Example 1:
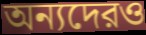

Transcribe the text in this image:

অন্যদেরও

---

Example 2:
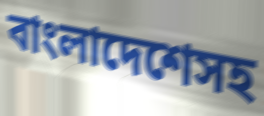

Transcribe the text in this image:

বাংলাদেশেসহ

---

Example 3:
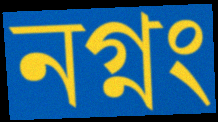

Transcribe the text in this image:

নগ্নং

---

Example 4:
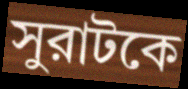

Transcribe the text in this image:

সুরাটকে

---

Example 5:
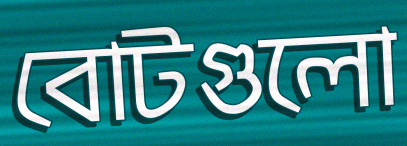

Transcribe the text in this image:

বোটগুলো